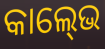
କାଲ୍‍ଭେ